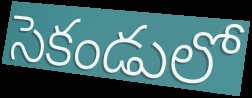
సెకండులో